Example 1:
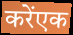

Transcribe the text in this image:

करेंएक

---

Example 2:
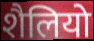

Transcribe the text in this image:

शैलियो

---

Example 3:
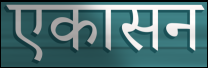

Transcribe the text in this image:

एकासन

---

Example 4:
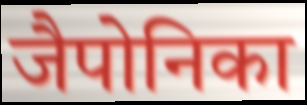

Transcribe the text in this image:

जैपोनिका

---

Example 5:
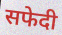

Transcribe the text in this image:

सफेदी